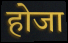
होजा